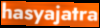
hasyajatra